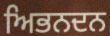
ਅਿਭਨਦਨ